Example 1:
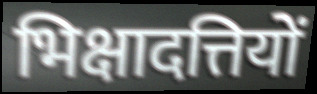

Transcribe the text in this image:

भिक्षादत्तियों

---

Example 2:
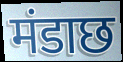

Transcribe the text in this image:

मंडाछ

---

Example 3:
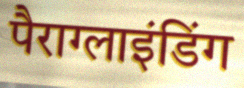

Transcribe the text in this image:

पैराग्लाइंडिंग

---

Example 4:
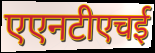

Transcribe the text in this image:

एएनटीएचई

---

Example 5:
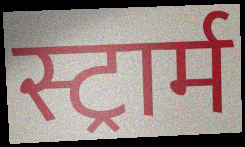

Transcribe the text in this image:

स्ट्रार्म